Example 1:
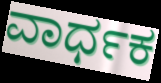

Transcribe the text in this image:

ವಾರ್ಧಕ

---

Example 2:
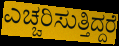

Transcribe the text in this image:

ಎಚ್ಚರಿಸುತ್ತಿದ್ದರೆ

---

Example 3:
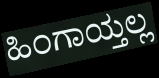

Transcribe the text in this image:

ಹಿಂಗಾಯ್ತಲ್ಲ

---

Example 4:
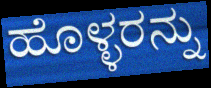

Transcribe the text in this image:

ಹೊಳ್ಳರನ್ನು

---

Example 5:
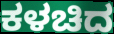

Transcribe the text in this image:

ಕಳಚಿದ